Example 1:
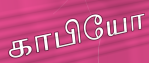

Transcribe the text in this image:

காபியோ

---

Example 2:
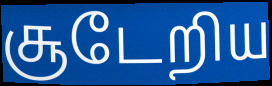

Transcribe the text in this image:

சூடேறிய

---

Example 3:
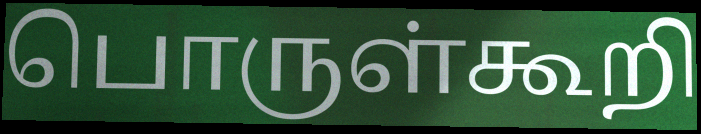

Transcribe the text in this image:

பொருள்கூறி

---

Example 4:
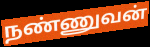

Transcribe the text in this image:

நண்ணுவன்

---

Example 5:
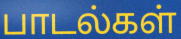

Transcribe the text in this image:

பாடல்கள்